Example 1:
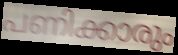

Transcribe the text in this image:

പണിക്കാരും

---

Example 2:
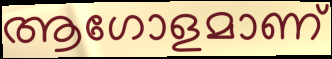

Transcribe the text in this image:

ആഗോളമാണ്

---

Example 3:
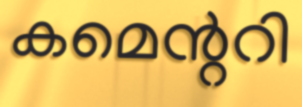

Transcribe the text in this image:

കമെന്ററി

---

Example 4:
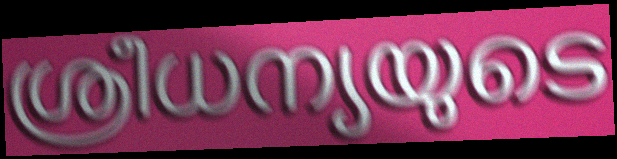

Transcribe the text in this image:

ശ്രീധന്യയുടെ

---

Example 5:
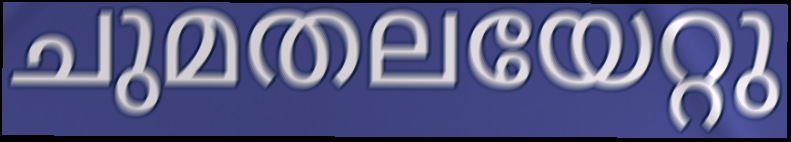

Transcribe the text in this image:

ചുമതലയേറ്റു